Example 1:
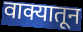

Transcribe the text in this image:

वाक्यातून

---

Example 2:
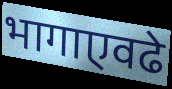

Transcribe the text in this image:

भागाएवढे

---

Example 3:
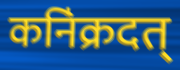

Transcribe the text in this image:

कनि॑क्रदत्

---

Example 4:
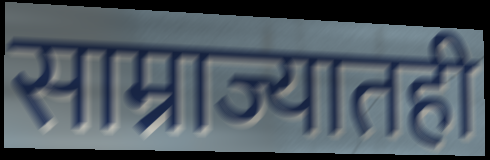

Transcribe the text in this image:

साम्राज्यातही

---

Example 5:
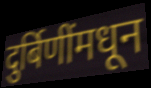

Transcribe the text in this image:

दुर्बिणींमधून